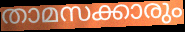
താമസക്കാരും